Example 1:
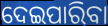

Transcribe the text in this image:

ଦେଇପାରିବା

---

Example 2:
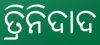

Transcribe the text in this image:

ତ୍ରିନିଦାଦ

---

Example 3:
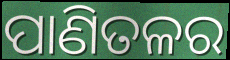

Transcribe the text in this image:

ପାଣିତଳର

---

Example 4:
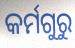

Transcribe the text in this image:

କର୍ମଗୁରୁ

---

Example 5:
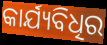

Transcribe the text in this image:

କାର୍ଯ୍ୟବିଧିର